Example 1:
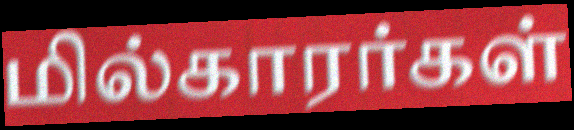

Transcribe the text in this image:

மில்காரர்கள்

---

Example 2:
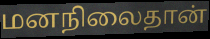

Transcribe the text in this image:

மனநிலைதான்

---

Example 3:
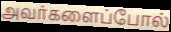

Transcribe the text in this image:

அவர்களைப்போல்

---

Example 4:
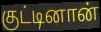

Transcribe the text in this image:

குட்டினான்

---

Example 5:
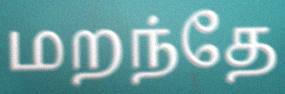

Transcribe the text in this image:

மறந்தே